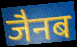
जैनब